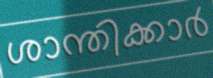
ശാന്തിക്കാർ